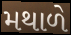
મથાળે